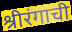
श्रीरंगाची